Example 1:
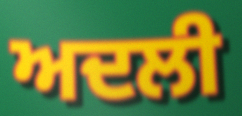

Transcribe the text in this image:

ਅਦਲੀ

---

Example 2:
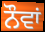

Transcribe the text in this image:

ਨੌਵਾਂ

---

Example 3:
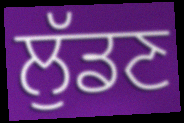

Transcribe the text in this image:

ਲੁੱਡਣ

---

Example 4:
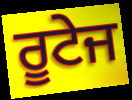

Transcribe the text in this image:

ਰੂਟੇਜ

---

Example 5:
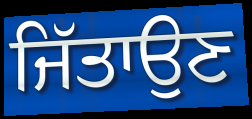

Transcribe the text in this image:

ਜਿੱਤਾਉਣ